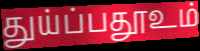
துய்ப்பதூஉம்